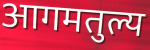
आगमतुल्य